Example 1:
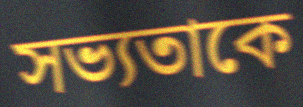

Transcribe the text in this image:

সভ্যতাকে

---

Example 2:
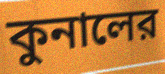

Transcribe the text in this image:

কুনালের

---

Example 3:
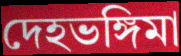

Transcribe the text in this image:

দেহভঙ্গিমা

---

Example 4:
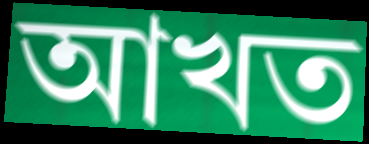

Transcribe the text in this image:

আখত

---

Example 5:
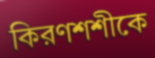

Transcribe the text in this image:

কিরণশশীকে